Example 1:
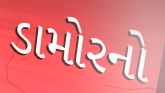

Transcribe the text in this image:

ડામોરનો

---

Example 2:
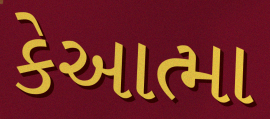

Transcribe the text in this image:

કેઆત્મા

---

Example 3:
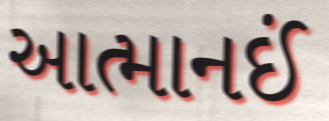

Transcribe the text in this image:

આત્માનઈં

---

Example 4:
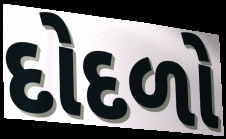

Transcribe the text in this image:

દોદળો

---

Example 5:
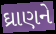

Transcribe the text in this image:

ઘ્રાણને